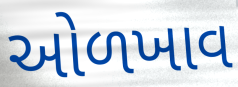
ઓળખાવ